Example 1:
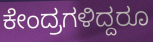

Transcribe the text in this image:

ಕೇಂದ್ರಗಳಿದ್ದರೂ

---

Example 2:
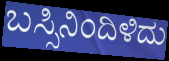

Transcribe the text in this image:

ಬಸ್ಸಿನಿಂದಿಳಿದು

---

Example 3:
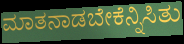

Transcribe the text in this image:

ಮಾತನಾಡಬೇಕೆನ್ನಿಸಿತು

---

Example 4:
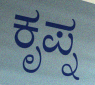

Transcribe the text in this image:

ಕೃಪ್ನ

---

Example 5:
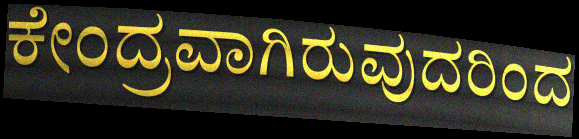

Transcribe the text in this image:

ಕೇಂದ್ರವಾಗಿರುವುದರಿಂದ